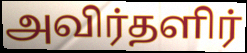
அவிர்தளிர்